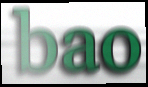
bao